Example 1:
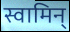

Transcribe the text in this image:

स्वामिन्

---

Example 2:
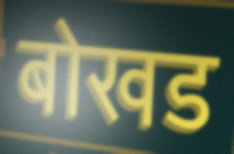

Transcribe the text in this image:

बोखड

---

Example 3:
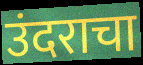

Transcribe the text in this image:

उंदराचा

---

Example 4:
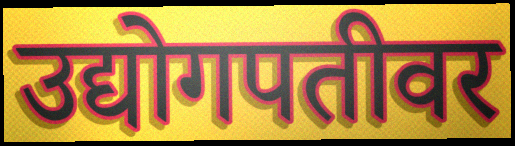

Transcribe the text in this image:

उद्योगपतीवर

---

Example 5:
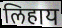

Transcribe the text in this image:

लिहाय